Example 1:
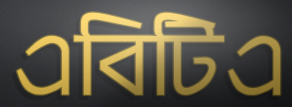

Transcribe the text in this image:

এবিটিএ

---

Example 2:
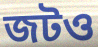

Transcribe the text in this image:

জটও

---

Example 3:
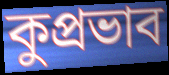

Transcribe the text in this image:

কুপ্রভাব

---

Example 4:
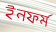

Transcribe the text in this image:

ইনফর্ম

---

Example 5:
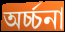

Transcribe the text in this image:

অর্চ্চনা